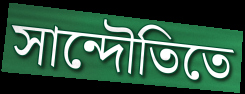
সান্দৌতিতে